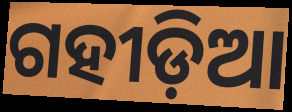
ଗହୀଡ଼ିଆ